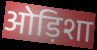
ओड़िशा